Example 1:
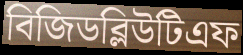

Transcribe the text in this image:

বিজিডব্লিউটিএফ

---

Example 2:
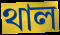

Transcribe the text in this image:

থাল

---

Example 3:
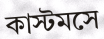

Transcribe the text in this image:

কাস্টমসে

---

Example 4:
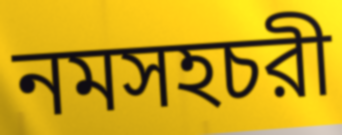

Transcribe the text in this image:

নমসহচরী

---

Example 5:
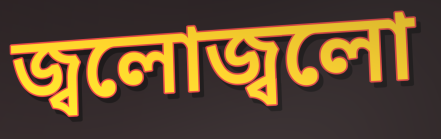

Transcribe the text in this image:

জ্বলোজ্বলো